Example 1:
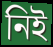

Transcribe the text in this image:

নিই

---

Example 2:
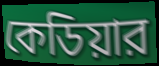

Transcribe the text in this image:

কেডিয়ার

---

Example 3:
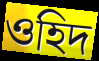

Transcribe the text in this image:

ওহিদ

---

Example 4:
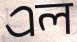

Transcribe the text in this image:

এল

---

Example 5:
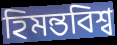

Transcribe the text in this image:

হিমন্তবিশ্ব